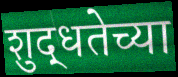
शुद्धतेच्या